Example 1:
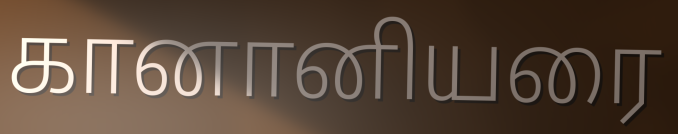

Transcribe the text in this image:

கானானியரை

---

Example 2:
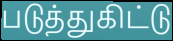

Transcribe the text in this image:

படுத்துகிட்டு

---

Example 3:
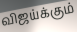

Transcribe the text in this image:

விஜய்க்கும்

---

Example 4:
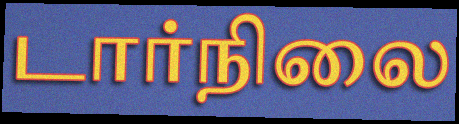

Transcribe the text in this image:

டார்நிலை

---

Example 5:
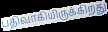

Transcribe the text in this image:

பதிவாகியிருக்கிறது